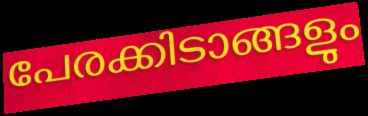
പേരക്കിടാങ്ങളും